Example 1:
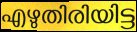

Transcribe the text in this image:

എഴുതിരിയിട്ട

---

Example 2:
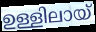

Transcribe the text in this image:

ഉള്ളിലായ്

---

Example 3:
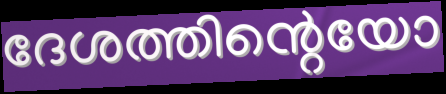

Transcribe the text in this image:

ദേശത്തിന്റെയോ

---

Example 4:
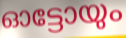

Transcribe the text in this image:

ഓട്ടോയും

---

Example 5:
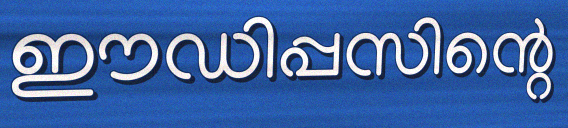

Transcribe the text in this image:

ഈഡിപ്പസിന്റെ